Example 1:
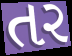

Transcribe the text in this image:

તર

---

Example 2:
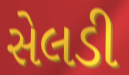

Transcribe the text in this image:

સેલડી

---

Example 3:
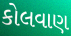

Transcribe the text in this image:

કોલવાણ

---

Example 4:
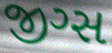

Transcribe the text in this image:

જીગ્સ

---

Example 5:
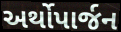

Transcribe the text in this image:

અર્થોપાર્જન